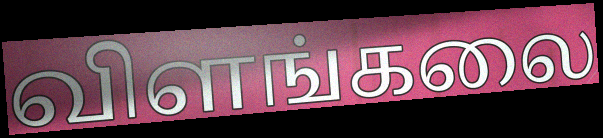
விளங்கலை